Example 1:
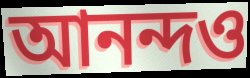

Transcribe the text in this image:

আনন্দও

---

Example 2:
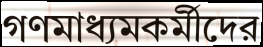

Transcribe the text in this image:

গণমাধ্যমকর্মীদের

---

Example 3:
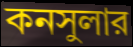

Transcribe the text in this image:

কনসুলার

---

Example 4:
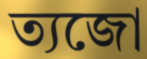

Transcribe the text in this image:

ত্যজো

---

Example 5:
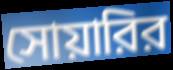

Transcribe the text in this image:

সোয়ারির